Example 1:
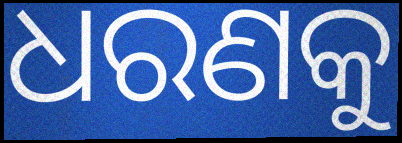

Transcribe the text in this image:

ଧରଣକୁ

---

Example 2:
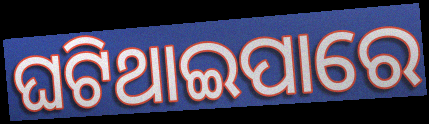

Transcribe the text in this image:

ଘଟିଥାଇପାରେ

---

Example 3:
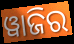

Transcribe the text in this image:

ୱାଜିର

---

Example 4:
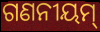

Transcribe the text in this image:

ଗଣନୀୟମ୍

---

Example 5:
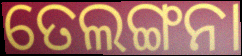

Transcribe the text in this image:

ତେଲଙ୍ଗନା